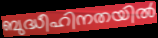
ബുദ്ധീഹിനതയിൽ